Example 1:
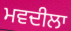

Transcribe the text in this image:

ਮਵਦੀਲਾ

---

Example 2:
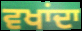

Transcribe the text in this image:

ਵਖਾਂਦਾ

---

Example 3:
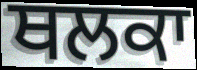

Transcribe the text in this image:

ਥਲਕਾ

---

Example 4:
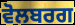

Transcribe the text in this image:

ਵੋਲਬਰਗ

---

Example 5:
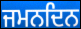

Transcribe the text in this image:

ਜਮਨਦਿਨ